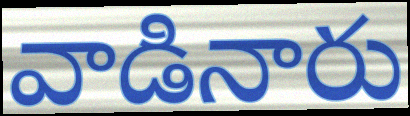
వాడినారు